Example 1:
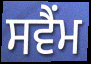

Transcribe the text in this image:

ਸਵੈਂਮ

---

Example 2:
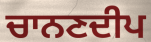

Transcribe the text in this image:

ਚਾਨਣਦੀਪ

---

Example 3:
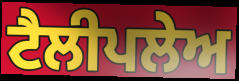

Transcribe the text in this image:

ਟੈਲੀਪਲੇਅ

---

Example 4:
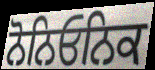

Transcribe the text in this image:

ਨੋਨਿਓਨਿਕ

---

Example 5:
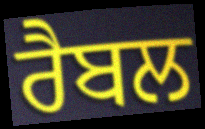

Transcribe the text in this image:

ਰੈਬਲ